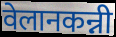
वेलानकन्नी